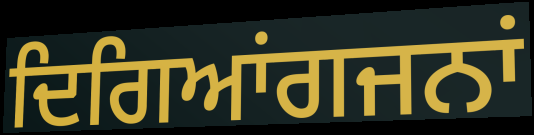
ਦਿਗਿਆਂਗਜਨਾਂ